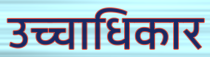
उच्चाधिकार